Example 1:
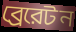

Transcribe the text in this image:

ব্রেরেটন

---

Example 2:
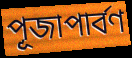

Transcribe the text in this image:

পূজাপার্বণ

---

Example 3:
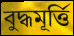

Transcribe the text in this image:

বুদ্ধমূর্ত্তি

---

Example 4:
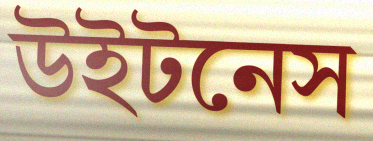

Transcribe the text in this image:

উইটনেস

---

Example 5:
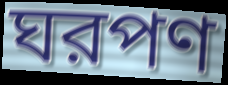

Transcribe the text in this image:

ঘরপণ